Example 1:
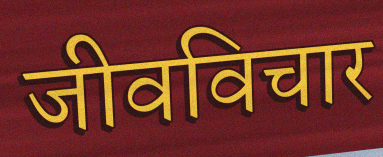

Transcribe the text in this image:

जीवविचार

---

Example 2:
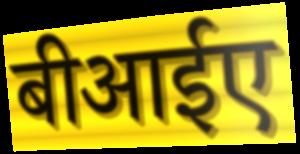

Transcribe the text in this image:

बीआईए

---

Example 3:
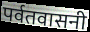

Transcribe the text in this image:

पर्वतवासनी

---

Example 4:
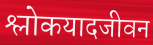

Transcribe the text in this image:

श्लोकयादजीवन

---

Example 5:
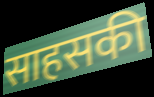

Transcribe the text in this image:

साहसकी